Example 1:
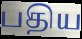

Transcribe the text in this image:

பதிய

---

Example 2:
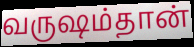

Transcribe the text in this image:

வருஷம்தான்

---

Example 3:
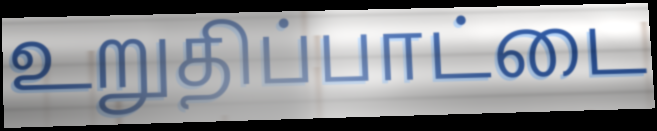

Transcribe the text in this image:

உறுதிப்பாட்டை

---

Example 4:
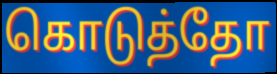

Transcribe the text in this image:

கொடுத்தோ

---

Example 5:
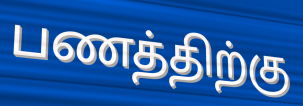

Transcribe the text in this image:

பணத்திற்கு